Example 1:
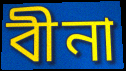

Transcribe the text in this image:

বীনা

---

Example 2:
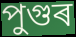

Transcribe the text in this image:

পুগুৰ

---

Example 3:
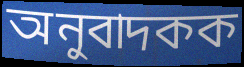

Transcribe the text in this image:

অনুবাদকক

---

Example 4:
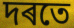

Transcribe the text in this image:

দৰতে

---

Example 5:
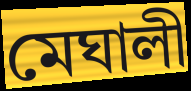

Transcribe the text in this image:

মেঘালী